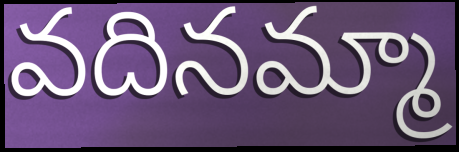
వదినమ్మా